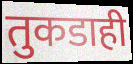
तुकडाही